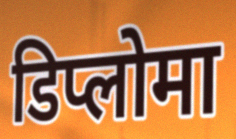
डिप्लोमा